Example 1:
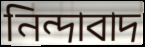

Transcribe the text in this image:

নিন্দাবাদ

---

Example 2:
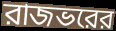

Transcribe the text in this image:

রাজভরের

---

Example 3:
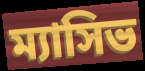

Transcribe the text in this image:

ম্যাসিভ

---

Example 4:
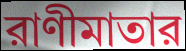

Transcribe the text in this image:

রাণীমাতার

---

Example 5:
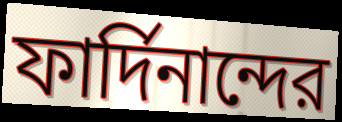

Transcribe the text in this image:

ফার্দিনান্দের